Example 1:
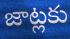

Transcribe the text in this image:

జాట్లకు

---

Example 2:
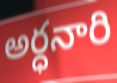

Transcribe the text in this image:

అర్ధనారి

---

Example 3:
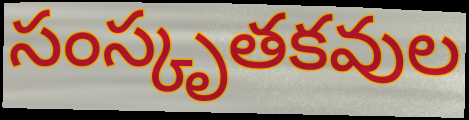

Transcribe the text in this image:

సంస్కృతకవుల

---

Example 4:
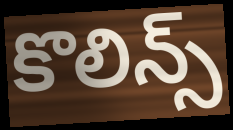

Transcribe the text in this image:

కొలిన్స్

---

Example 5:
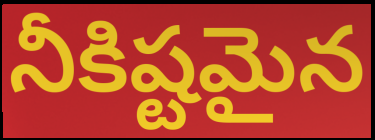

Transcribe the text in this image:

నీకిష్టమైన